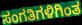
ಸಂಗತಿಗಳಿಗಿಂತ